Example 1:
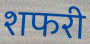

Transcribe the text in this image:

शफरी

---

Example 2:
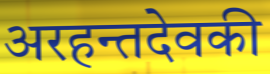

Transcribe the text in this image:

अरहन्तदेवकी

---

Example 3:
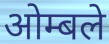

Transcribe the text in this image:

ओम्बले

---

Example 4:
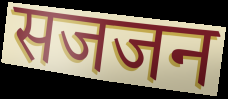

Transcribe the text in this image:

सजजन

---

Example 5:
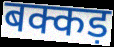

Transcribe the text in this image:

बक्कड़